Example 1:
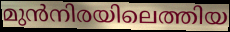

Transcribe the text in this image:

മുൻനിരയിലെത്തിയ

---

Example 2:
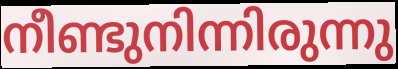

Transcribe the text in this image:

നീണ്ടുനിന്നിരുന്നു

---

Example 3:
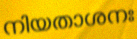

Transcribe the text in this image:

നിയതാശനഃ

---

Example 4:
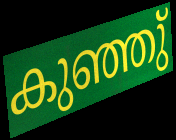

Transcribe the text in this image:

കുഞ്ഞു്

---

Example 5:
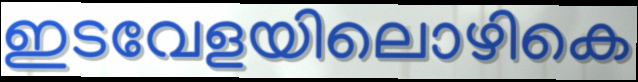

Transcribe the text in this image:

ഇടവേളയിലൊഴികെ